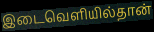
இடைவெளியில்தான்